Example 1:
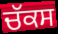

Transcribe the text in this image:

ਚੱਕਸ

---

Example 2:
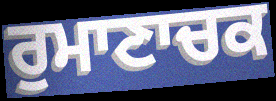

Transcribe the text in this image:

ਰੁਮਾਣਾਚਕ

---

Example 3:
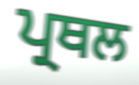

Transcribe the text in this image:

ਪ੍ਰਥਲ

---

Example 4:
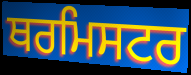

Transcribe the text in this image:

ਥਰਮਿਸਟਰ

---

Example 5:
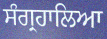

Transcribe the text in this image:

ਸੰਗ੍ਰਹਾਲਿਆ